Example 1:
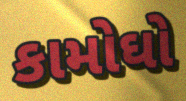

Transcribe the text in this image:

કામોઘો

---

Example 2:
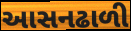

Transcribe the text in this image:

આસનઢાળી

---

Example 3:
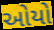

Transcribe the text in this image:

ઓયો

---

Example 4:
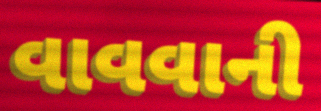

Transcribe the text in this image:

વાવવાની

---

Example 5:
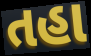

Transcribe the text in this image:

તહા